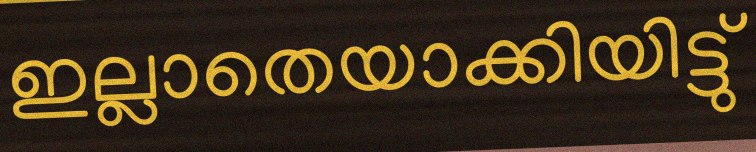
ഇല്ലാതെയാക്കിയിട്ടു്